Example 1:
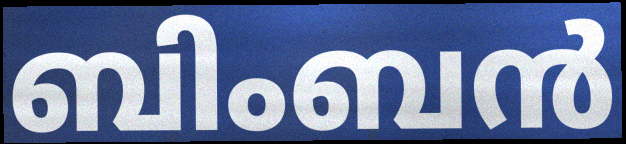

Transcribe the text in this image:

ബിംബൻ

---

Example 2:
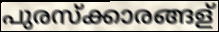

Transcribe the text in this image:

പുരസ്ക്കാരങ്ങള്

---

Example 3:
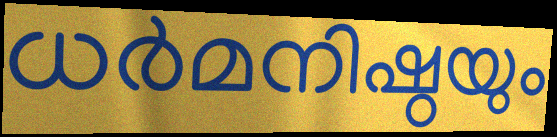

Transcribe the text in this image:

ധർമനിഷ്ഠയും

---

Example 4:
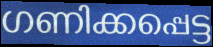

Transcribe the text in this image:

ഗണിക്കപ്പെട്ട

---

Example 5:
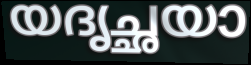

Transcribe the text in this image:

യദൃച്ഛയാ